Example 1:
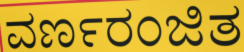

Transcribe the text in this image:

ವರ್ಣರಂಜಿತ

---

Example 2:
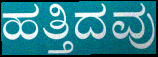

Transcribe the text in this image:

ಹತ್ತಿದವು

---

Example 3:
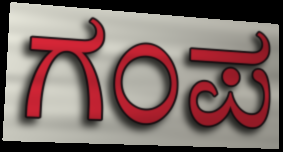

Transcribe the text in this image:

ಗಂಪ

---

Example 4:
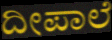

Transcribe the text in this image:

ದೀಪಾಲೆ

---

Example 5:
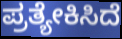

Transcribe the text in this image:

ಪ್ರತ್ಯೇಕಿಸಿದೆ